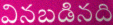
వినబడినది